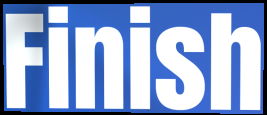
Finish